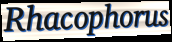
Rhacophorus